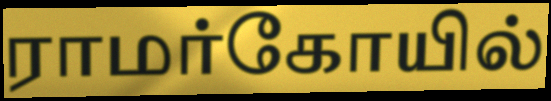
ராமர்கோயில்